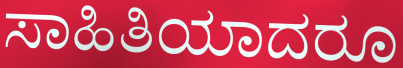
ಸಾಹಿತಿಯಾದರೂ